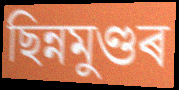
ছিন্নমুণ্ডৰ